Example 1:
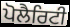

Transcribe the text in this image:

ਪੋਲੈਰਿਟੀ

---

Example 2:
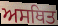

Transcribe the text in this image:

ਅਸਥਿਤ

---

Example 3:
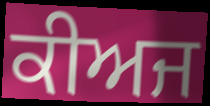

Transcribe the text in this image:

ਕੀਅਜ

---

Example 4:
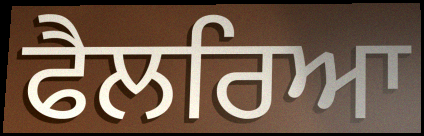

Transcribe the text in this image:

ਫੈਲਰਿਆ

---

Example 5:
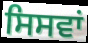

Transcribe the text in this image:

ਸਿਸਵਾਂ